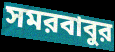
সমরবাবুর